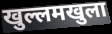
खुल्लमखुला